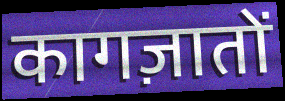
कागज़ातों